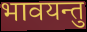
भावयन्तु